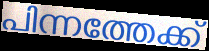
പിന്നത്തേക്ക്